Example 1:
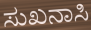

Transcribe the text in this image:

ಸುಖನಾಸಿ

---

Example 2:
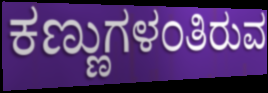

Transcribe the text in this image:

ಕಣ್ಣುಗಳಂತಿರುವ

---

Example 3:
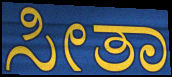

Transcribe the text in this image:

ಸೀತಾ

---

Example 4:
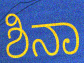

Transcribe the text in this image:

ಶಿನಾ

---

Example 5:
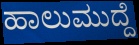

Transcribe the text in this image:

ಹಾಲುಮುದ್ದೆ